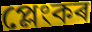
প্লেংকৰ